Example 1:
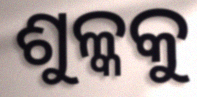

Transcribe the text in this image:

ଶୁଳ୍କକୁ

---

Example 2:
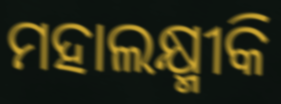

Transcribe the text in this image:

ମହାଲକ୍ଷ୍ମୀକି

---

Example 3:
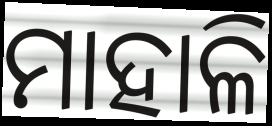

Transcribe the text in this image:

ମାହାଳି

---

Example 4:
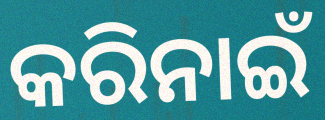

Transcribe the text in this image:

କରିନାଇଁ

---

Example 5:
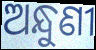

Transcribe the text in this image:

ଅନ୍ଧୁଣୀ